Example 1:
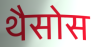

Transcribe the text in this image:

थैसोस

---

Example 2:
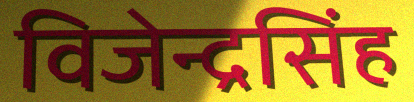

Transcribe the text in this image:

विजेन्द्रसिंह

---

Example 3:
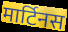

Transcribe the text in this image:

मार्टिनस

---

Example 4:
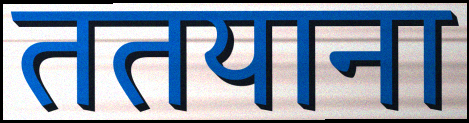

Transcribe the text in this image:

ततयाना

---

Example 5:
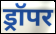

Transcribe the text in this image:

ड्रॉपर